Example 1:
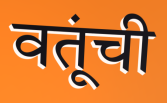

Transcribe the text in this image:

वतूंची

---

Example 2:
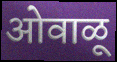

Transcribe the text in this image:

ओवाळू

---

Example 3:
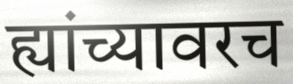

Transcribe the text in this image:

ह्यांच्यावरच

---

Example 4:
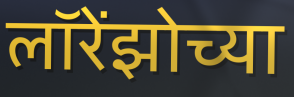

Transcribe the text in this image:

लॉरेंझोच्या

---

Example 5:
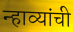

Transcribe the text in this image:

न्हाव्यांची